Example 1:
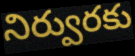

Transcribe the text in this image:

నిర్వురకు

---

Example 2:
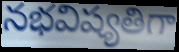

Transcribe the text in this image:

నభవిష్యతిగా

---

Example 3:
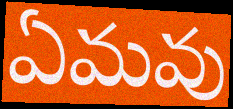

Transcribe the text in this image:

ఏమవు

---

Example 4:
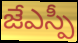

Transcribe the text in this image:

జేఎస్పీ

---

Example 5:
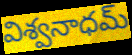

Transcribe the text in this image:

విశ్వనాధమ్